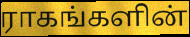
ராகங்களின்